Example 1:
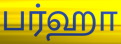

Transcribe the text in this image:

பர்ஹா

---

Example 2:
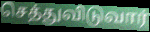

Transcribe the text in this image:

செத்துவிடுவார்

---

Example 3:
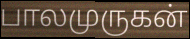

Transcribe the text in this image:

பாலமுருகன்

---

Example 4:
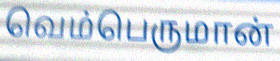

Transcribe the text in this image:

வெம்பெருமான்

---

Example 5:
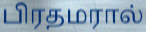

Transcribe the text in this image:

பிரதமரால்